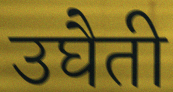
उघैती